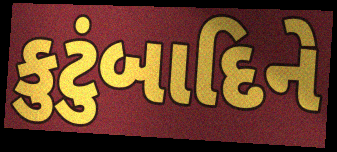
કુટુંબાદિને